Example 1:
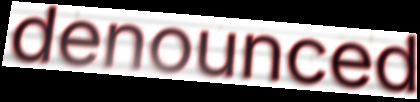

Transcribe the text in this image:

denounced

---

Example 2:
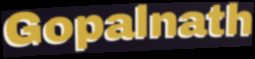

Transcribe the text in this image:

Gopalnath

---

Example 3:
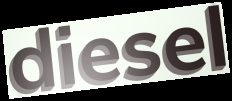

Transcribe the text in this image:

diesel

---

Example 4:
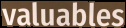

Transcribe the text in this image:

valuables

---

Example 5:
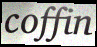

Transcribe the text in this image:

coffin